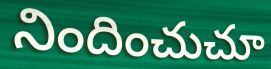
నిందించుచూ